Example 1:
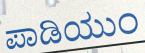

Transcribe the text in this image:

ಪಾಡಿಯುಂ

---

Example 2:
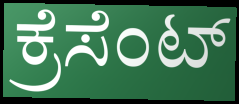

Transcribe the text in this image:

ಕ್ರೆಸೆಂಟ್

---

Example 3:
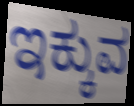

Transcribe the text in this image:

ಇಕ್ಕುವ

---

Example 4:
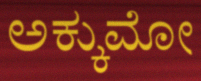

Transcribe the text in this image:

ಅಕ್ಕುಮೋ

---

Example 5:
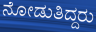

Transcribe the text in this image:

ನೋಡುತಿದ್ದರು